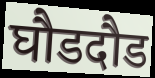
घौडदौड